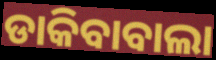
ଡାକିବାବାଲା